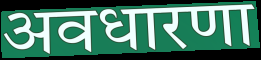
अवधारणा